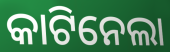
କାଟିନେଲା